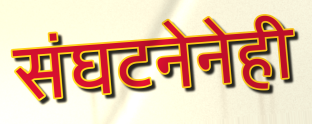
संघटनेनेही